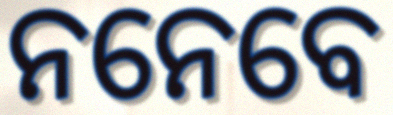
ନନେବେ